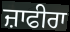
ਜ਼ਾਫੀਰਾ